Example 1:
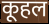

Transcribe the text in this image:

कूहल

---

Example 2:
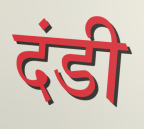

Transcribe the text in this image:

दंडी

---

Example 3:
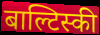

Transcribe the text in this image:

बाल्टिस्की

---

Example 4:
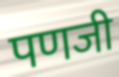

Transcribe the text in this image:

पणजी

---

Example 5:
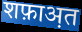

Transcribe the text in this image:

शफ़ाअ़त